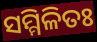
ସମ୍ମିଳିତଃ